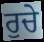
ਰੁਚੇ